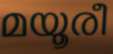
മയൂരീ